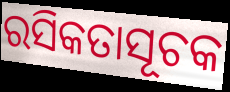
ରସିକତାସୂଚକ